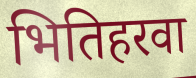
भितिहरवा